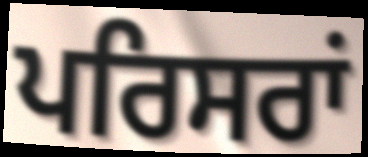
ਪਰਿਸਰਾਂ